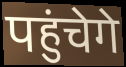
पहुंचेगे